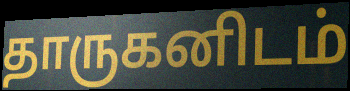
தாருகனிடம்